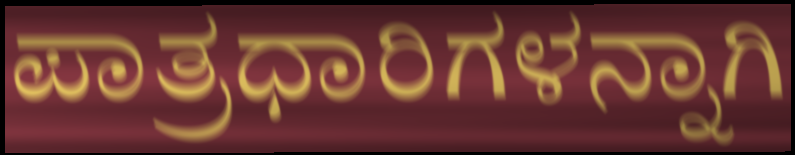
ಪಾತ್ರಧಾರಿಗಳನ್ನಾಗಿ